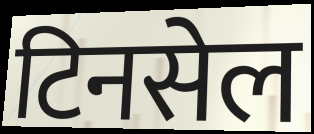
टिनसेल